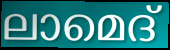
ലാമെദ്